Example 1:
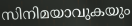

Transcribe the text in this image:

സിനിമയാവുകയും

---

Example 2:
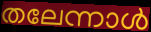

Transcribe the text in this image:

തലേന്നാൾ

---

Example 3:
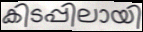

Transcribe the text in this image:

കിടപ്പിലായി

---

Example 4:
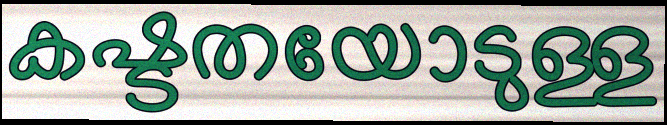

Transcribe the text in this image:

കഷ്ടതയോടുള്ള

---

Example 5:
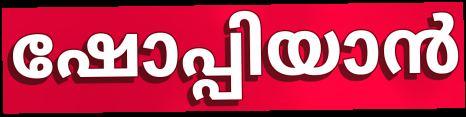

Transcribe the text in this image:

ഷോപ്പിയാൻ